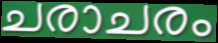
ചരാചരം